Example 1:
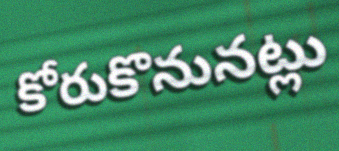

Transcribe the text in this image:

కోరుకొనునట్లు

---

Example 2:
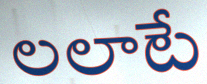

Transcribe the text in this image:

లలాటే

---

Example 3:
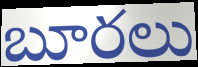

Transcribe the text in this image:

బూరలు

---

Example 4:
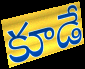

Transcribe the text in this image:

కూడే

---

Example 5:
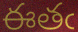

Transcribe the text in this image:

ఈతఁ